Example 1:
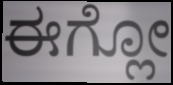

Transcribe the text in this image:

ಈಗ್ಲೋ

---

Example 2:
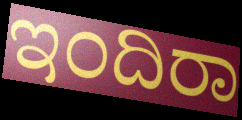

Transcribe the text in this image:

ಇಂದಿರಾ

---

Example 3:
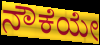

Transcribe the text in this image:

ನೌಕೆಯೇ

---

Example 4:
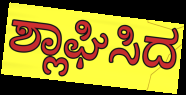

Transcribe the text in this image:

ಶ್ಲಾಘಿಸಿದ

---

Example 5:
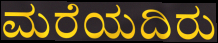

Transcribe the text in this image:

ಮರೆಯದಿರು